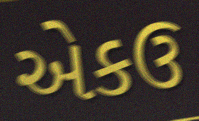
એકઉ